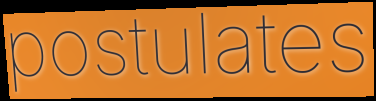
postulates